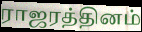
ராஜரத்தினம்